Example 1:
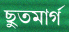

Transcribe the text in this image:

ছুতমার্গ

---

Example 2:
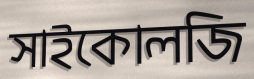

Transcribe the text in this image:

সাইকোলজি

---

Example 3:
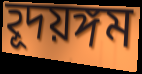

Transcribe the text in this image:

হূদয়ঙ্গম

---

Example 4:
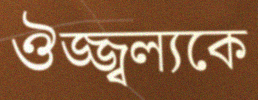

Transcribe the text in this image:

ঔজ্জ্বল্যকে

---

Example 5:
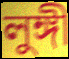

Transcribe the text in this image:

লুঙ্গী